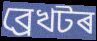
ব্ৰেখটৰ